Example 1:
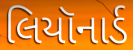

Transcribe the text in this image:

લિયૉનાર્ડ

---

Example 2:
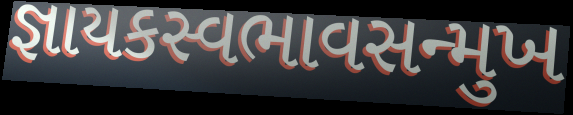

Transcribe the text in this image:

જ્ઞાયકસ્વભાવસન્મુખ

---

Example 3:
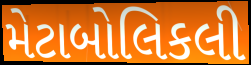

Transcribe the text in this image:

મેટાબોલિકલી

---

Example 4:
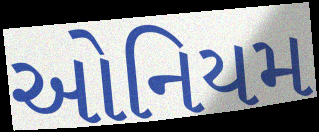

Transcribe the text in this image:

ઓનિયમ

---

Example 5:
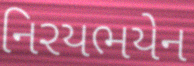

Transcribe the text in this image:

નિરયભયેન